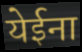
येईना